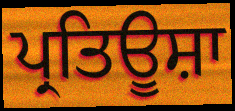
ਪ੍ਰਤਿਊਸ਼ਾ